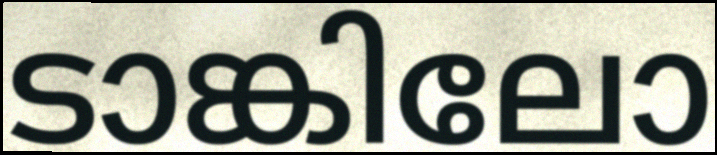
ടാങ്കിലോ